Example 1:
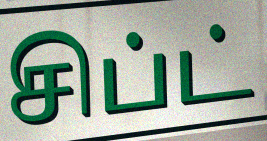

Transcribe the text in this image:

சிப்ட்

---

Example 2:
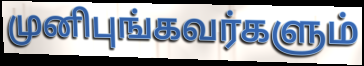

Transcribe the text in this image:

முனிபுங்கவர்களும்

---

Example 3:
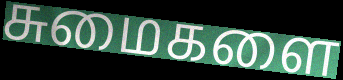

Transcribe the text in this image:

சுமைகளை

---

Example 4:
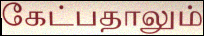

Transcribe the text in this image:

கேட்பதாலும்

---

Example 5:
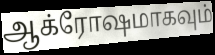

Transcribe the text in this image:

ஆக்ரோஷமாகவும்